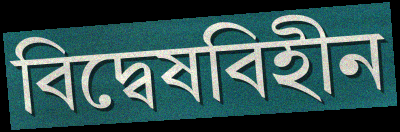
বিদ্বেষবিহীন